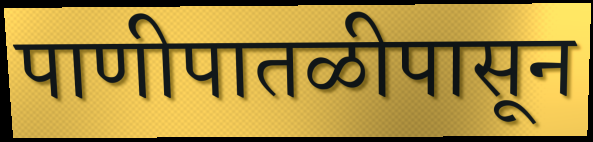
पाणीपातळीपासून